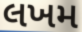
લખમ